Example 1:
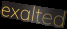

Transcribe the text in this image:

exalted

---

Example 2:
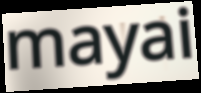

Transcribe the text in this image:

mayai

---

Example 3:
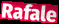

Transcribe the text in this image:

Rafale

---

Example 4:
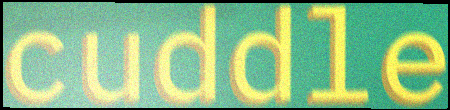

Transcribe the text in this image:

cuddle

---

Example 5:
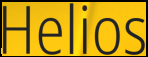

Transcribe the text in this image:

Helios